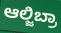
ಆಲ್ಜಿಬ್ರಾ